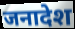
जनादेश